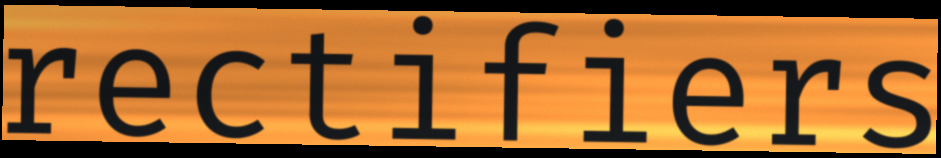
rectifiers